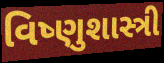
વિષ્ણુશાસ્ત્રી